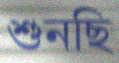
শুনছি